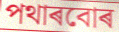
পথাৰবোৰ